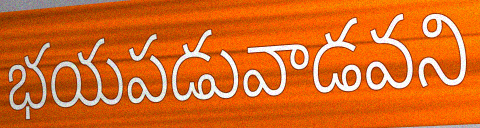
భయపడువాడవని